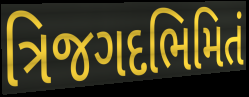
ત્રિજગદભિમિતં